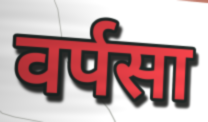
वर्पसा